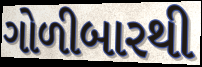
ગોળીબારથી